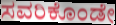
ಸವರಿಕೊಂಡೇ